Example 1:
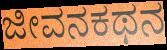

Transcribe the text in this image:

ಜೀವನಕಥನ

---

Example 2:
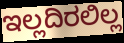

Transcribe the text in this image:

ಇಲ್ಲದಿರಲಿಲ್ಲ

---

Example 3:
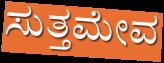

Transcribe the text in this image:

ಸುತ್ತಮೇವ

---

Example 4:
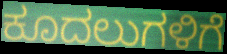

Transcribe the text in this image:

ಕೂದಲುಗಳಿಗೆ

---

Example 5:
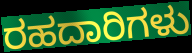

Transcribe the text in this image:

ರಹದಾರಿಗಳು